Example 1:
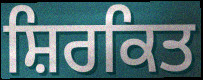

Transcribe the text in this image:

ਸ਼ਿਰਕਿਤ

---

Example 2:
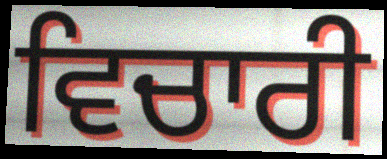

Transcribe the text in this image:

ਵਿਚਾਰੀ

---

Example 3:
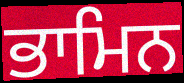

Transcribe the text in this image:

ਭਾਮਿਨ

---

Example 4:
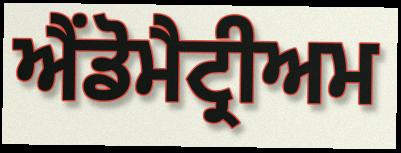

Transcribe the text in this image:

ਐਂਡੋਮੈਟ੍ਰੀਅਮ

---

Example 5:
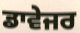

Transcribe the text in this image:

ਡਾਵੇਜਰ